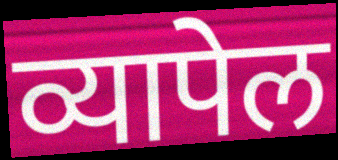
व्यापेल